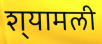
श्यामली